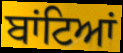
ਬਾਂਟਿਆਂ